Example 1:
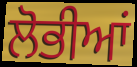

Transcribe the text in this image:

ਲੋਭੀਆਂ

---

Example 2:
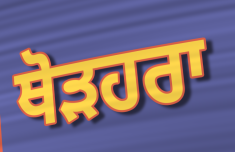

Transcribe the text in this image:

ਥੋੜਹਰਾ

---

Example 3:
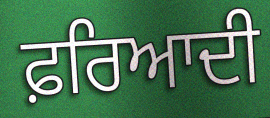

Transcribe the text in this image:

ਫ਼ਰਿਆਦੀ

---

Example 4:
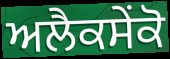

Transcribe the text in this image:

ਅਲੈਕਸੇਂਕੋ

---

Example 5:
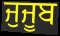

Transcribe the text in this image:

ਜੁਜੂਬ